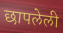
छापलेली